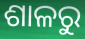
ଶାଳରୁ